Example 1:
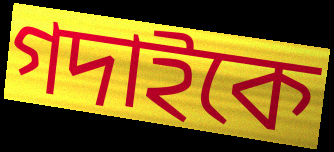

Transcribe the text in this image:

গদাইকে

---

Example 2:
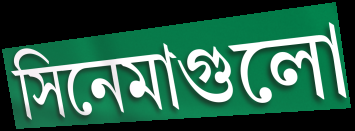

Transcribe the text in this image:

সিনেমাগুলো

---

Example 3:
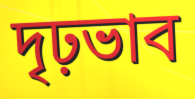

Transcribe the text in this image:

দৃঢ়ভাব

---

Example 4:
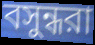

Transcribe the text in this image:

বসুন্ধরা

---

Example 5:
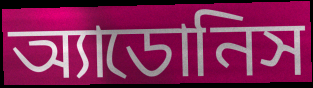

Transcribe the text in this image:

অ্যাডোনিস